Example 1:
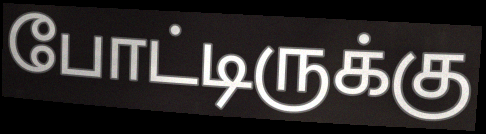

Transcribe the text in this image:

போட்டிருக்கு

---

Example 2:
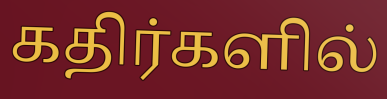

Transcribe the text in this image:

கதிர்களில்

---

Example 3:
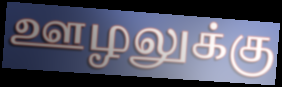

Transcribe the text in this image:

ஊழலுக்கு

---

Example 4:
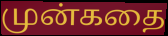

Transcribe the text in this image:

முன்கதை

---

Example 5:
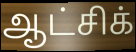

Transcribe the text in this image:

ஆட்சிக்